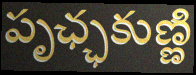
పృఛ్ఛకుణ్ణి